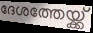
ദേശത്തേയ്ക്ക്